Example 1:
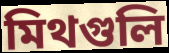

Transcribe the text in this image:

মিথগুলি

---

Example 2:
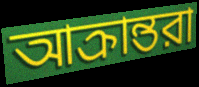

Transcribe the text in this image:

আক্রান্তরা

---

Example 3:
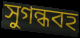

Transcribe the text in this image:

সুগন্ধবহ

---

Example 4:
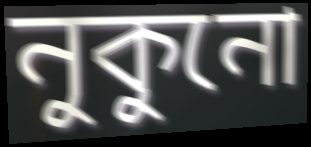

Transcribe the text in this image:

নুকুনো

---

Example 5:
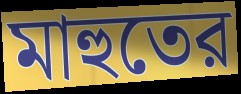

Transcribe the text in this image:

মাহুতের